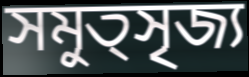
সমুত্সৃজ্য